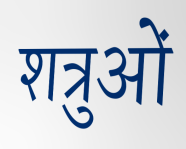
शत्रुओं